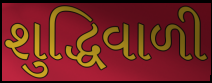
શુદ્ધિવાળી